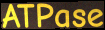
ATPase